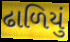
ઢાળિયું